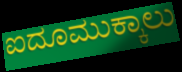
ಐದೂಮುಕ್ಕಾಲು